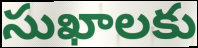
సుఖాలకు